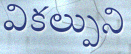
వికల్పుని